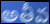
అతీవ